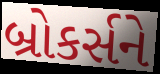
બ્રોકર્સને